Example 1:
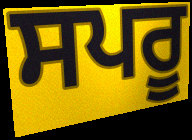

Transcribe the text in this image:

ਸਪਰੂ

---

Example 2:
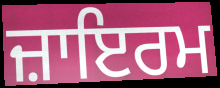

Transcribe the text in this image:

ਜ਼ਾਇਰਮ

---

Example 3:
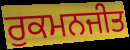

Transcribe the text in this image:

ਰੁਕਮਨਜੀਤ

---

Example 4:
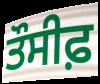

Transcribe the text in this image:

ਤੌਸੀਫ਼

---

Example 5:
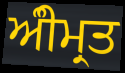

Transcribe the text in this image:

ਅੰੀਮ੍ਰਤ